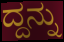
ದ್ದನ್ನು